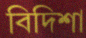
বিদিশা